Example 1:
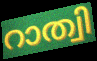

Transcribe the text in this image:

റാത്വി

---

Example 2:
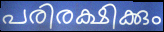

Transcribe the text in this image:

പരിരക്ഷിക്കും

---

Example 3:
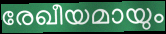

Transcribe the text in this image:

രേഖീയമായും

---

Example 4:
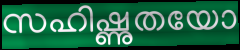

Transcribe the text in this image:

സഹിഷ്ണുതയോ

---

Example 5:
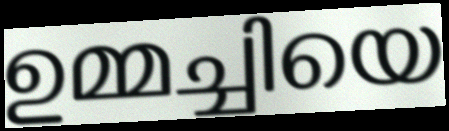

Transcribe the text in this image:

ഉമ്മച്ചിയെ